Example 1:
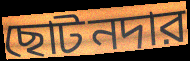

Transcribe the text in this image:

ছোটনদার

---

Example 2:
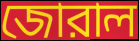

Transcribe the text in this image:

জোরাল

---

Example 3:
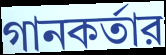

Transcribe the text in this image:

গানকর্তার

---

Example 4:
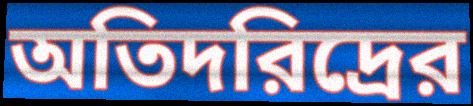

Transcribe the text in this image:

অতিদরিদ্রের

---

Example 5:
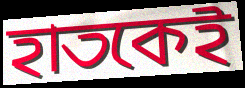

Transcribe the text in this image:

হাতকেই